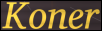
Koner